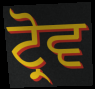
ਟ੍ਰੋਵ